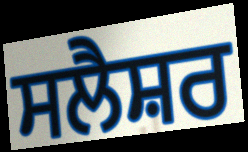
ਸਲੈਸ਼ਰ